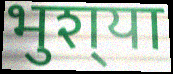
भुश्या